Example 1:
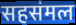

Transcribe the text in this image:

सहसंमल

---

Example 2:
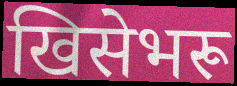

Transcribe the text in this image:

खिसेभरू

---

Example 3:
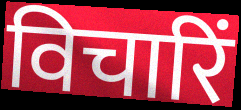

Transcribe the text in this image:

विचारिं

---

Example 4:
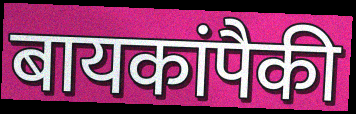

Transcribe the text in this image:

बायकांपैकी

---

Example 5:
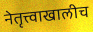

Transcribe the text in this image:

नेतृत्त्वाखालीच